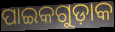
ପାଇକଗୁଡ଼ାକ